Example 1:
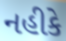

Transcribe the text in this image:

નહીકે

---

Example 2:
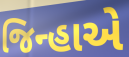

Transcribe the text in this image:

જિન્હાએ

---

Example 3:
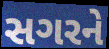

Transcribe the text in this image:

સગરને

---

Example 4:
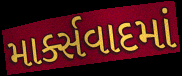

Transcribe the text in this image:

માર્ક્સવાદમાં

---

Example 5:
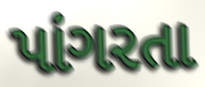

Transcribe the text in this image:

પાંગરતા